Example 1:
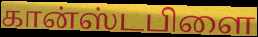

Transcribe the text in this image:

கான்ஸ்டபிளை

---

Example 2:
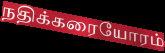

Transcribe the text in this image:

நதிக்கரையோரம்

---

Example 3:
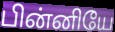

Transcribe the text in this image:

பின்னியே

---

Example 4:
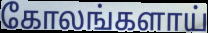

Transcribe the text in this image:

கோலங்களாய்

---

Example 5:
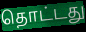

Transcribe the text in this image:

தொட்டது